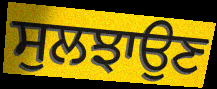
ਸੁਲਝਾਉਣ